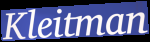
Kleitman